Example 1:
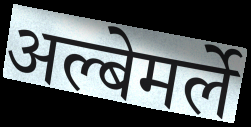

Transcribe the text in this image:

अल्बेमर्ले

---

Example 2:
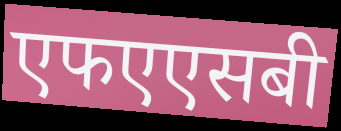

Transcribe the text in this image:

एफएएसबी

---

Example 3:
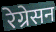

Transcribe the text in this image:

रेग्रेसन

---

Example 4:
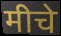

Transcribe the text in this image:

मीचे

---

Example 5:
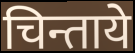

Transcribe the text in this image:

चिन्ताये